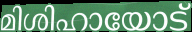
മിശിഹായോട്